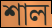
শাল